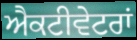
ਐਕਟੀਵੇਟਰਾਂ